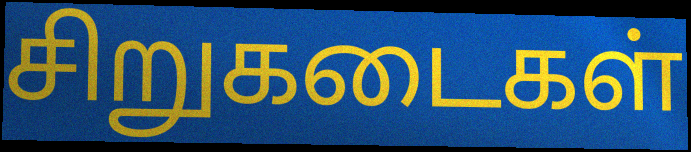
சிறுகடைகள்